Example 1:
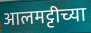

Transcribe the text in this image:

आलमट्टीच्या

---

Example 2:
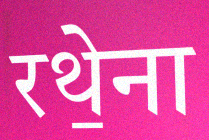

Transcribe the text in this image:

रथे॒ना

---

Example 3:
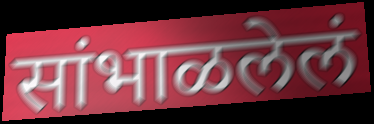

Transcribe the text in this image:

सांभाळलेलं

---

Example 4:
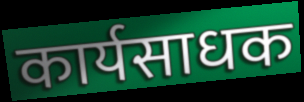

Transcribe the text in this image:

कार्यसाधक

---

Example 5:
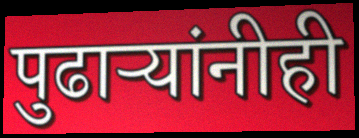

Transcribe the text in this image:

पुढाऱ्यांनीही